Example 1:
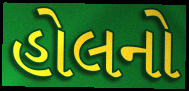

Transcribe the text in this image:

હોલનો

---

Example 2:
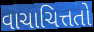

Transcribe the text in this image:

વાચાચિત્તતો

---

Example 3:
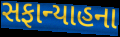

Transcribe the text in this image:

સફાન્યાહના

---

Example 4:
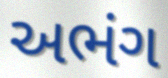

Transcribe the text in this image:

અભંગ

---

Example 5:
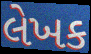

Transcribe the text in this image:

લેખક